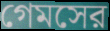
গেমসের